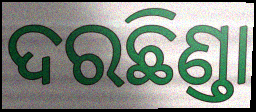
ଦରଛିଣ୍ଡା